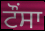
ਟੌਂਸਾ